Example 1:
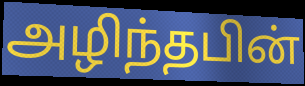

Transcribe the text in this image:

அழிந்தபின்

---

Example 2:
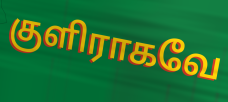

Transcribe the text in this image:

குளிராகவே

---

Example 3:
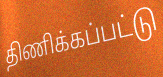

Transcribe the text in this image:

திணிக்கப்பட்டு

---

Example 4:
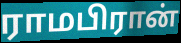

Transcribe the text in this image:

ராமபிரான்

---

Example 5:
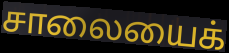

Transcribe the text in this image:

சாலையைக்